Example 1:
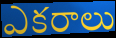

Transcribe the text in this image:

ఎకరాలు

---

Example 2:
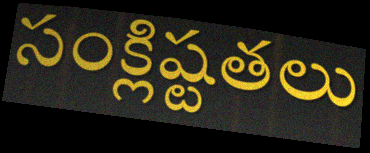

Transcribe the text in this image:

సంక్లిష్టతలు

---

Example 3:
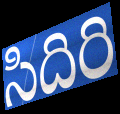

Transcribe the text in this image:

సిదిరి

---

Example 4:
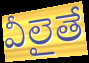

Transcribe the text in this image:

వీలైతే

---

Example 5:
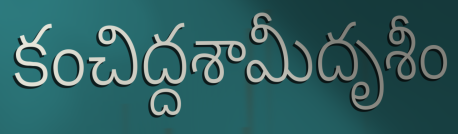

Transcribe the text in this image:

కంచిద్దశామీదృశీం